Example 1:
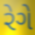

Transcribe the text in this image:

રેગે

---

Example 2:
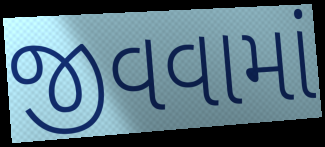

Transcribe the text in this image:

જીવવામાં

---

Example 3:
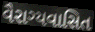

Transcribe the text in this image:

વૈરાગ્યવાસિત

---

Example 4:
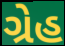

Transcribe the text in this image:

ગ્રેહ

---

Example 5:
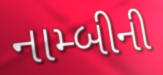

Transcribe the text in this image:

નામ્બીની